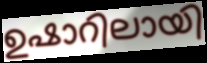
ഉഷാറിലായി